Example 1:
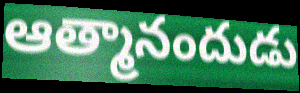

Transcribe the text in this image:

ఆత్మానందుడు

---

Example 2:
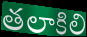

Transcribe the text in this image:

తలాకిలి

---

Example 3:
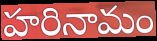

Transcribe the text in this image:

హరినామం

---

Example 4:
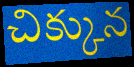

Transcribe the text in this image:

చిక్కున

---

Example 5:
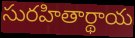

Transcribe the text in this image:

సురహితార్థాయ